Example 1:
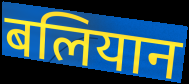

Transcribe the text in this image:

बलियान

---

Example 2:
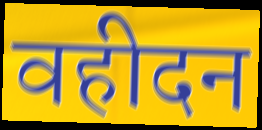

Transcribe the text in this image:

वहीदन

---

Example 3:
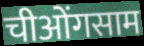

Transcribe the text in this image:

चीओंगसाम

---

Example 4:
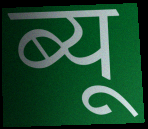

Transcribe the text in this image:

ब्यू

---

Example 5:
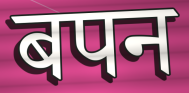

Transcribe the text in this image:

बपन